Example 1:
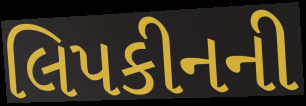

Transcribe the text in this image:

લિપકીનની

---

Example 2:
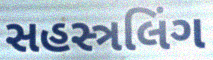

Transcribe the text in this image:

સહસ્ત્રલિંગ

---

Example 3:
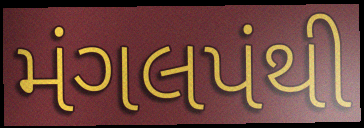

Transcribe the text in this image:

મંગલપંથી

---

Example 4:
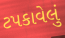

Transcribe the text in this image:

ટપકાવેલું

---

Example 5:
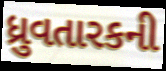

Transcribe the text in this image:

ધ્રુવતારકની